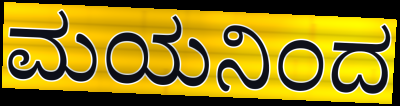
ಮಯನಿಂದ